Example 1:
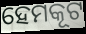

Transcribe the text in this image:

ହେମକୂଟ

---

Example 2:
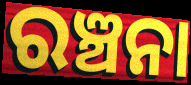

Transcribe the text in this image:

ରଞ୍ଚନା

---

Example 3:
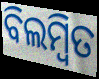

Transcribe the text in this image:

ବିଲମ୍ୱିତ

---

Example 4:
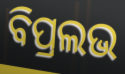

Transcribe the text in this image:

ବିପ୍ରଲଭ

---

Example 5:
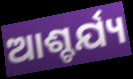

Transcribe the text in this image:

ଆଶ୍ଚର୍ଯ୍ୟ